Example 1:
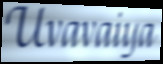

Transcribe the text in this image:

Uvavaiya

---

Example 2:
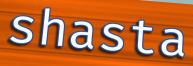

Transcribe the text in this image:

shasta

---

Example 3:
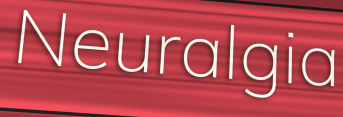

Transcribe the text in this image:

Neuralgia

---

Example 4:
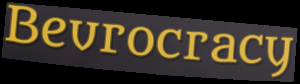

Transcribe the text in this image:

Beurocracy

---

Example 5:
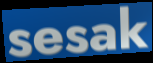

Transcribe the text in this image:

sesak